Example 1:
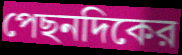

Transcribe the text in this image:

পেছনদিকের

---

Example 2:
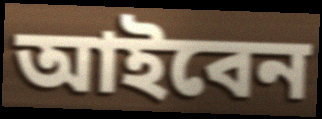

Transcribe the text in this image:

আইবেন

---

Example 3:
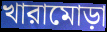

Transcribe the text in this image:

খারামোড়া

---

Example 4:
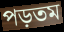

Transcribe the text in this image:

পড়তম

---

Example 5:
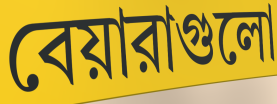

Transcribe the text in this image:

বেয়ারাগুলো